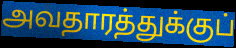
அவதாரத்துக்குப்